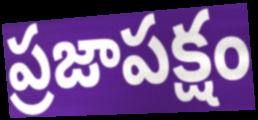
ప్రజాపక్షం